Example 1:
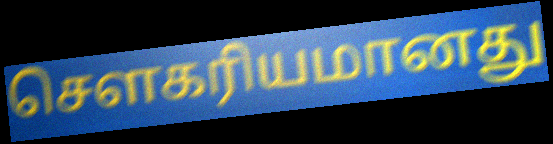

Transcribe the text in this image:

சௌகரியமானது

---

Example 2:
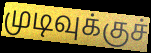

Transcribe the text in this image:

முடிவுக்குச்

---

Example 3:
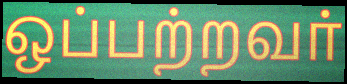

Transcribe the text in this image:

ஒப்பற்றவர்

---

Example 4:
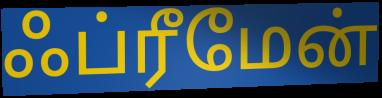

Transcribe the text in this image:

ஃப்ரீமேன்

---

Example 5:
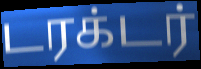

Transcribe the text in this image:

டரக்டர்